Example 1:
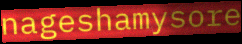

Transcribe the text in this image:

nageshamysore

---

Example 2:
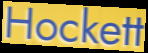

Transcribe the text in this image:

Hockett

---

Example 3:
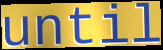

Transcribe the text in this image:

until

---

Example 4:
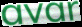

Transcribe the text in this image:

avar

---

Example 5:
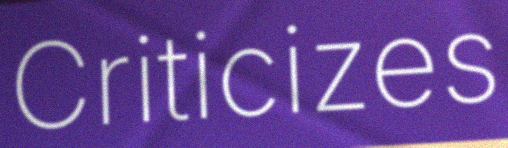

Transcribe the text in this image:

Criticizes